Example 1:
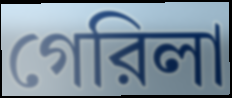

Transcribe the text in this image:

গেরিলা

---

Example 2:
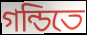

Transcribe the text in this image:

গন্ডিতে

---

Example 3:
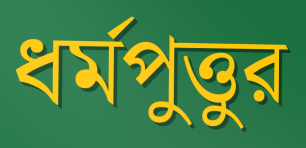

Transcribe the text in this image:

ধর্মপুত্তুর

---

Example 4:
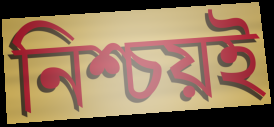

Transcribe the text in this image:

নিশ্চয়ই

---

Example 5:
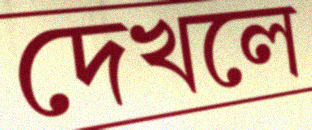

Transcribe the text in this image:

দেখলে